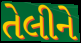
તેલીને